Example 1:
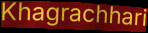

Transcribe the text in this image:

Khagrachhari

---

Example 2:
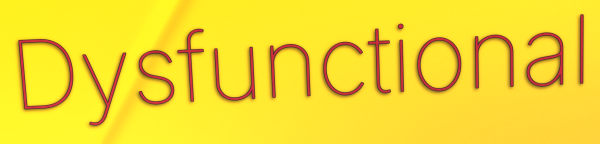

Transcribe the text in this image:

Dysfunctional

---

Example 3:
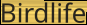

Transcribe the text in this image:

Birdlife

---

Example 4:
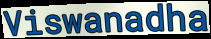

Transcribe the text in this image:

Viswanadha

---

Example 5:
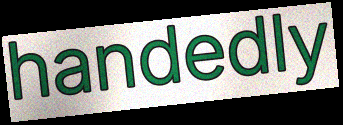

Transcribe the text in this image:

handedly